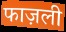
फाज़ली